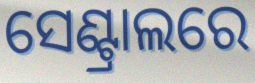
ସେଣ୍ଟ୍ରାଲରେ